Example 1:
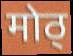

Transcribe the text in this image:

मोठ्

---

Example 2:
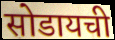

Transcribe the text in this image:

सोडायची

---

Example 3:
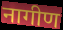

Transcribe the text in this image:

नागीण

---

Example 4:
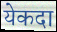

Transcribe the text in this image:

येकदा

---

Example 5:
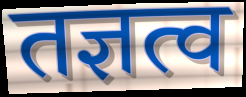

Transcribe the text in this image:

तज्ञत्व